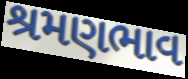
શ્રમણભાવ